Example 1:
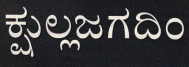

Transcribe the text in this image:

ಕ್ಷುಲ್ಲಜಗದಿಂ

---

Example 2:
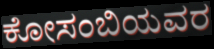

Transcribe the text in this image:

ಕೋಸಂಬಿಯವರ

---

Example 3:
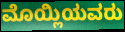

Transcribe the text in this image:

ಮೊಯ್ಲಿಯವರು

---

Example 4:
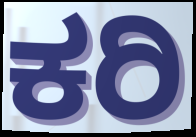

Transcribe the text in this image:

ಕರಿ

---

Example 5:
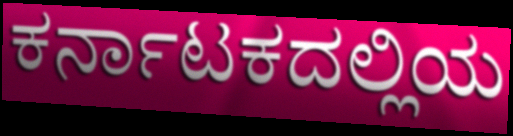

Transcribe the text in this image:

ಕರ್ನಾಟಕದಲ್ಲಿಯ